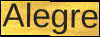
Alegre